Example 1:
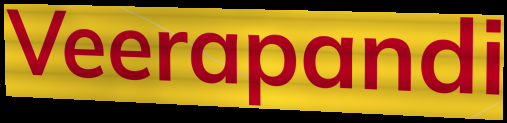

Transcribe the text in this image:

Veerapandi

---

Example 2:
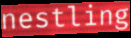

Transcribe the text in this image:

nestling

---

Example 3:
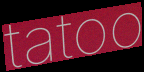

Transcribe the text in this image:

tatoo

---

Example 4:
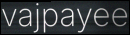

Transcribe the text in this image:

vajpayee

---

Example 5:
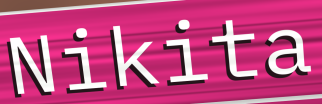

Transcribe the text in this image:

Nikita